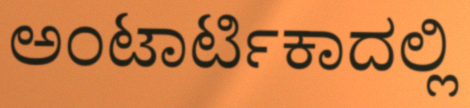
ಅಂಟಾರ್ಟಿಕಾದಲ್ಲಿ